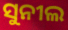
ସୁନୀଲ